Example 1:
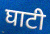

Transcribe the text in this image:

घाटी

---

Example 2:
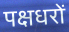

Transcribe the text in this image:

पक्षधरों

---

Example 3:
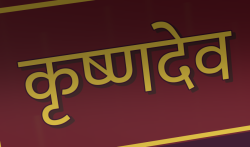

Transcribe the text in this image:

कृष्णदेव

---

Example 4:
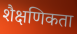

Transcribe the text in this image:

शैक्षणिकता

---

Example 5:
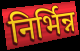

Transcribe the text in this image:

निर्भिन्न